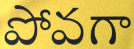
పోవగా